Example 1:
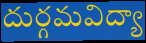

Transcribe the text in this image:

దుర్గమవిద్యా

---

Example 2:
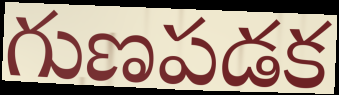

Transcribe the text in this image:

గుణపడక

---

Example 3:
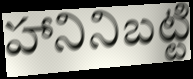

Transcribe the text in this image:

హానినిబట్టి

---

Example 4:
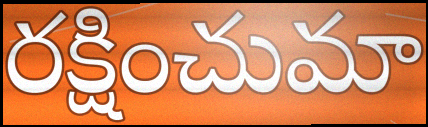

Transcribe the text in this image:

రక్షించుమా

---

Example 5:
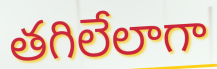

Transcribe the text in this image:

తగిలేలాగా